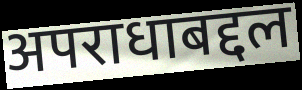
अपराधाबद्दल